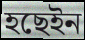
হছেইন